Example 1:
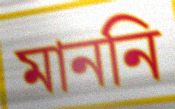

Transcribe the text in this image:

মাননি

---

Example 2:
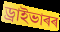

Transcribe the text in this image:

ড্ৰাইভাৰৰ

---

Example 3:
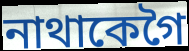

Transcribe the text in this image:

নাথাকেগৈ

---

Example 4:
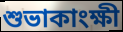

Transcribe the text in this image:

শুভাকাংক্ষী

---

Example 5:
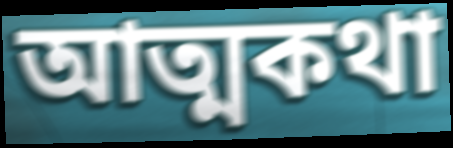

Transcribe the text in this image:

আত্মকথা